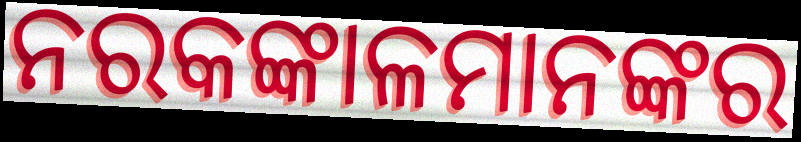
ନରକଙ୍କାଳମାନଙ୍କର